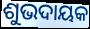
ଶୁଭଦାୟକ